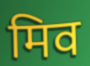
मिव